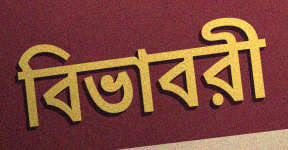
বিভাবরী